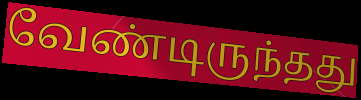
வேண்டிருந்தது